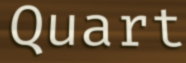
Quart